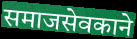
समाजसेवकाने